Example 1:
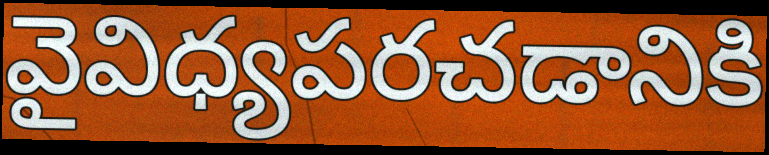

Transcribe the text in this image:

వైవిధ్యపరచడానికి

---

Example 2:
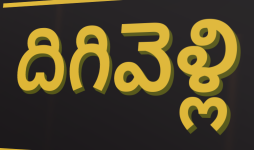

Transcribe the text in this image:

దిగివెళ్లి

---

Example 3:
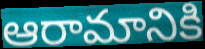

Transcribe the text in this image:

ఆరామానికి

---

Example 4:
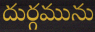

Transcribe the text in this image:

దుర్గమును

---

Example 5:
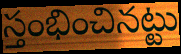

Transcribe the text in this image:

స్తంభించినట్టు